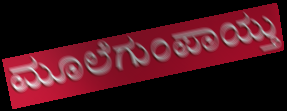
ಮೂಲೆಗುಂಪಾಯ್ತು